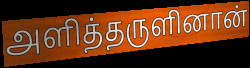
அளித்தருளினான்